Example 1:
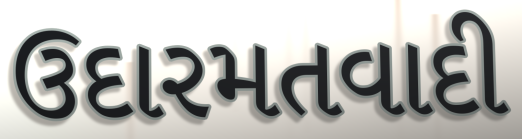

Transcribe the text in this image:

ઉદારમતવાદી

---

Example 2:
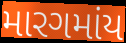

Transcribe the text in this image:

મારગમાંય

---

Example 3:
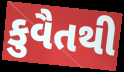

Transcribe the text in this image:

કુવૈતથી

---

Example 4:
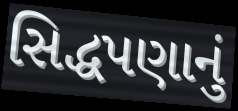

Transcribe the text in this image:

સિદ્ધપણાનું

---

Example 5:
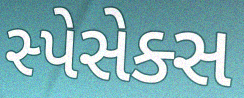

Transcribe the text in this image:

સ્પેસેક્સ